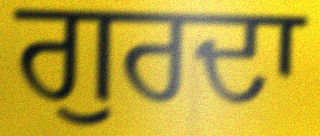
ਗੁਰਦਾ